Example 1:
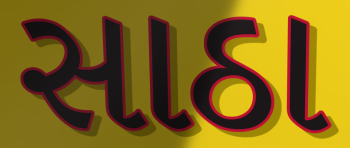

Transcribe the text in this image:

સાઠા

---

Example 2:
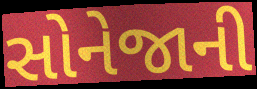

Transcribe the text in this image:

સોનેજાની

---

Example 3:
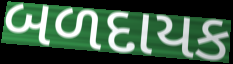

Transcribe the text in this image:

બળદાયક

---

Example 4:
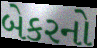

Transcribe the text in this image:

બેકરનો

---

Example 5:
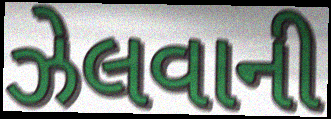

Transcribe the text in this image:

ઝેલવાની